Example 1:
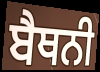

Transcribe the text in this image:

ਬੈਥਨੀ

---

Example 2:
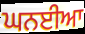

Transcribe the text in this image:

ਘਨਈਆ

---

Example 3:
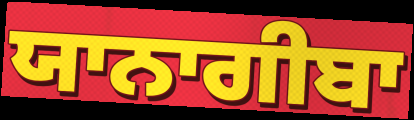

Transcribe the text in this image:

ਯਾਨਾਗੀਬਾ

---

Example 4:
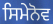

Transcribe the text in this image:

ਸਿਮੇਨੋਵ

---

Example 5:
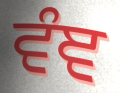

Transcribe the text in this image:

ਵੰਞ